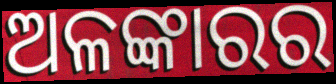
ଅଳଙ୍କାରର